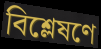
বিশ্লেষণে